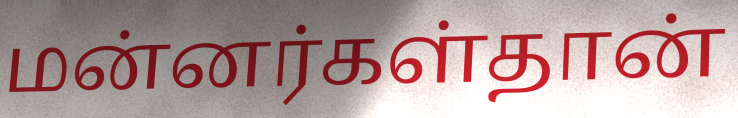
மன்னர்கள்தான்